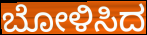
ಬೋಳಿಸಿದ